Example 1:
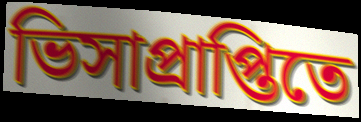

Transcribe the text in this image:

ভিসাপ্রাপ্তিতে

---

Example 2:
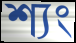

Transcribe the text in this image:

শ্যং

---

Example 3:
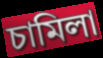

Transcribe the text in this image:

চামিলা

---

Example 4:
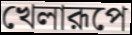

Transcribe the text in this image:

খেলারূপে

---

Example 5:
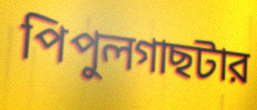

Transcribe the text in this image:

পিপুলগাছটার